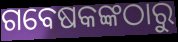
ଗବେଷକଙ୍କଠାରୁ